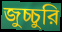
জুচ্চুরি